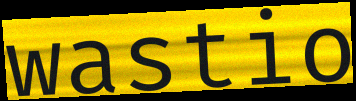
wastio